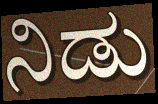
ನಿಡು